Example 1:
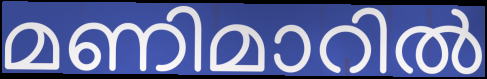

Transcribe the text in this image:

മണിമാറിൽ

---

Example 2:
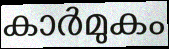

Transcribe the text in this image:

കാർമുകം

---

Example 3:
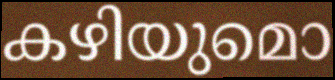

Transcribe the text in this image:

കഴിയുമൊ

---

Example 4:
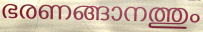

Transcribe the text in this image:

ഭരണങ്ങാനത്തും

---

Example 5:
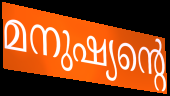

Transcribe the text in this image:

മനുഷ്യന്റെ